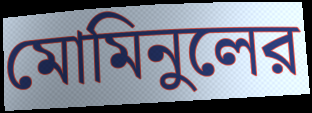
মোমিনুলের